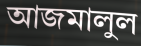
আজমালুল